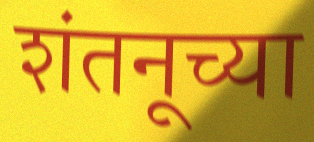
शंतनूच्या